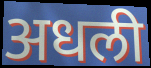
अधली